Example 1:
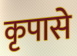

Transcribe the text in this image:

कृपासे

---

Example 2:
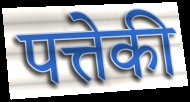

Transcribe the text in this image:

पत्तेकी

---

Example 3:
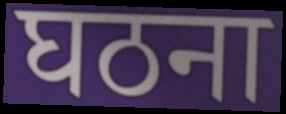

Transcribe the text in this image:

घठना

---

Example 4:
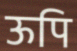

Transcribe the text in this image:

ऊपि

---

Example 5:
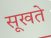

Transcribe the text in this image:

सूखते